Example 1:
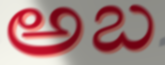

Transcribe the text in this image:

అబ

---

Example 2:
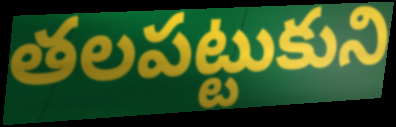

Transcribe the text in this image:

తలపట్టుకుని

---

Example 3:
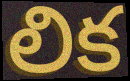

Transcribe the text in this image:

లిక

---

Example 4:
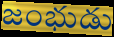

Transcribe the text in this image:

జంభుడు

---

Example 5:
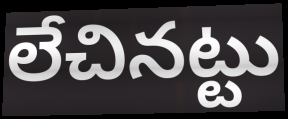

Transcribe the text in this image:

లేచినట్టు